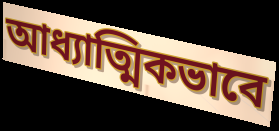
আধ্যাত্মিকভাবে